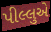
પીલ્લુએ